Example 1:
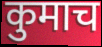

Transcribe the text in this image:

कुमाच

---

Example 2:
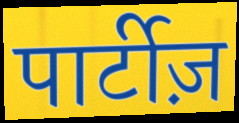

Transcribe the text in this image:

पार्टीज़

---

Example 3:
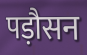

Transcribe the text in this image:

पड़ौसन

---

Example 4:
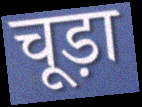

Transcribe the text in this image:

चूड़ा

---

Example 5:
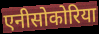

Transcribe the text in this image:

एनीसोकोरिया